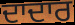
ਦਾਦਾਰ